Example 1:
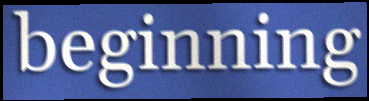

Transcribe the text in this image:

beginning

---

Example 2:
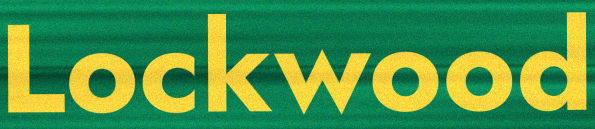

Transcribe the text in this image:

Lockwood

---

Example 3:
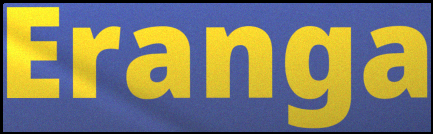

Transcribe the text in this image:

Eranga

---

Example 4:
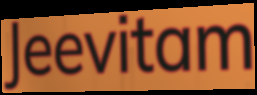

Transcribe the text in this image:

Jeevitam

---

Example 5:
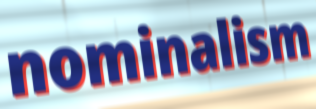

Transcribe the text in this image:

nominalism